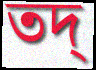
তদ্